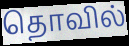
தொவில்